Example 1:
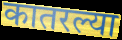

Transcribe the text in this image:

कातरल्या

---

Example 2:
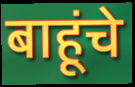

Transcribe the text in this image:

बाहूंचे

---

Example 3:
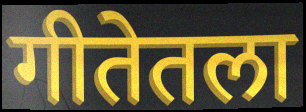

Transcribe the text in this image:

गीतेतला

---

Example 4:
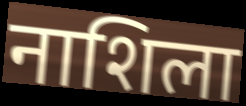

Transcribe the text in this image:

नाशिला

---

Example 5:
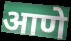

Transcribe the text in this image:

आणे